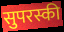
सुपरस्की